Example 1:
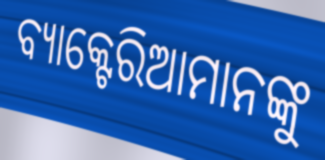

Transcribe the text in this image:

ବ୍ୟାକ୍ଟେରିଆମାନଙ୍କୁ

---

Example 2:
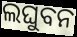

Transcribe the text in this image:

ଲଘୁବନ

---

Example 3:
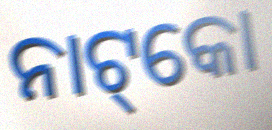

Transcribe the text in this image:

ନାଟ୍‌କୋ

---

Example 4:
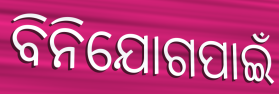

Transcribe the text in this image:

ବିନିଯୋଗପାଇଁ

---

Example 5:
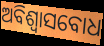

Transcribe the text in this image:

ଅବିଶ୍ୱାସବୋଧ